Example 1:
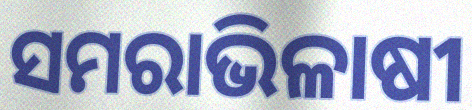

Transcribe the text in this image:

ସମରାଭିଳାଷୀ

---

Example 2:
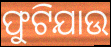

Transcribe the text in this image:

ଫୁଟିଯାଉ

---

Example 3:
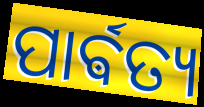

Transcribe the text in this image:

ପାର୍ଵତ୍ଯ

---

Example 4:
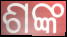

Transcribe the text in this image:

ଶଙ୍କ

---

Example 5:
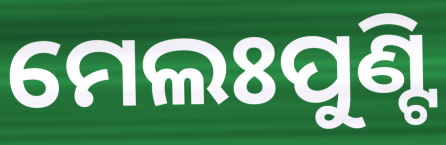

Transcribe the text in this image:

ମେଲଃପୁଣ୍ଟି